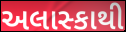
અલાસ્કાથી